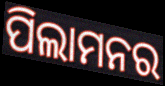
ପିଲାମନର